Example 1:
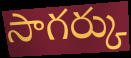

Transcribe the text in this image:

సాగర్కు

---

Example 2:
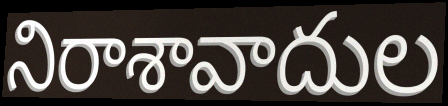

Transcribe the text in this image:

నిరాశావాదుల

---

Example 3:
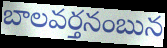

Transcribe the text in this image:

బాలవర్తనంబున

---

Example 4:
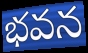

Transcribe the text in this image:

భవన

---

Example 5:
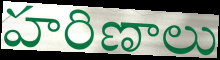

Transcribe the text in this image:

హరిణాలు